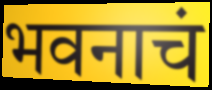
भवनाचं